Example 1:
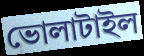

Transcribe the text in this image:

ভোলাটাইল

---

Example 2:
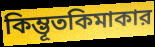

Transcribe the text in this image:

কিম্ভূতকিমাকার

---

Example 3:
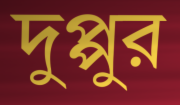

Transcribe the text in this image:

দুপ্পুর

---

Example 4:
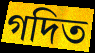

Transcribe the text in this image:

গদিত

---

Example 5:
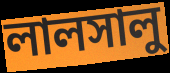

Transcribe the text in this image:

লালসালু